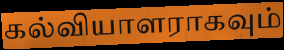
கல்வியாளராகவும்